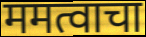
ममत्वाचा